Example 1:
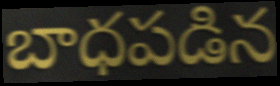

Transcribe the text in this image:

బాధపడిన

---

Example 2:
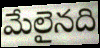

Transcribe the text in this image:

మేలైనది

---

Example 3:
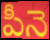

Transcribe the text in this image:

పీనె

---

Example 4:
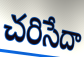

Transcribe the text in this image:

చరిసేదా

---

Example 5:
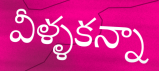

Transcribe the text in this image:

వీళ్ళకన్నా